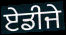
ਏਡੀਜੇ